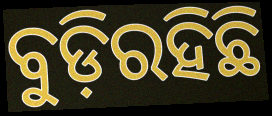
ବୁଡ଼ିରହିଛି